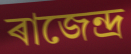
ৰাজেন্দ্ৰ